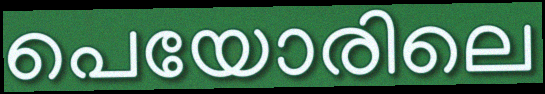
പെയോരിലെ